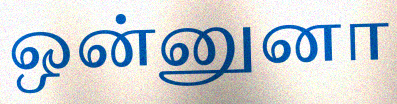
ஒன்னுனா